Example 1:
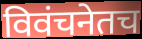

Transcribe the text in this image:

विवंचनेतच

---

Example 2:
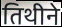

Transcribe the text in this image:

तिथीने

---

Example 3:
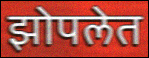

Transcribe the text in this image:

झोपलेत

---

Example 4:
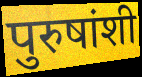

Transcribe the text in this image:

पुरुषांशी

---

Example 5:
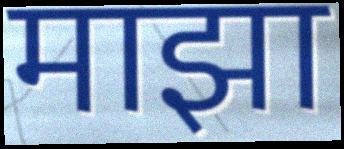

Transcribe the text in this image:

माझा